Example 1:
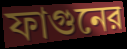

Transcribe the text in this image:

ফাগুনের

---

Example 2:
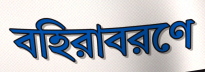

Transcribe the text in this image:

বহিরাবরণে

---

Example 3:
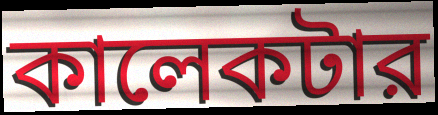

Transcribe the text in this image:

কালেকটার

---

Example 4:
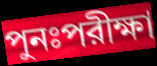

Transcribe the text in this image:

পুনঃপরীক্ষা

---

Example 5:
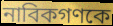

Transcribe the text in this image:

নাবিকগণকে